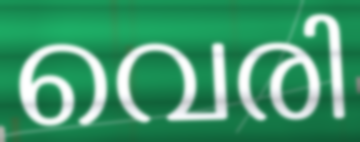
വെരി